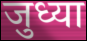
जुध्या